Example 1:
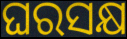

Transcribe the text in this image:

ଘରସକ୍ଷ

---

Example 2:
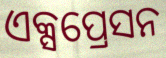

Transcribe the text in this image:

ଏକ୍ସପ୍ରେସନ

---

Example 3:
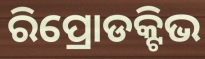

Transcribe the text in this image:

ରିପ୍ରୋଡକ୍ଟିଭ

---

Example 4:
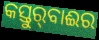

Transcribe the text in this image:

କସ୍ତୁର୍‍ବାଈର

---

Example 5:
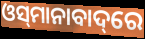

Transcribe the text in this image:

ଓସ୍‌ମାନାବାଦ୍‌ରେ